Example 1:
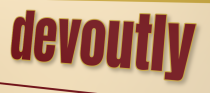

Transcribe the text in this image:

devoutly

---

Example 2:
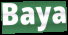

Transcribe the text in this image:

Baya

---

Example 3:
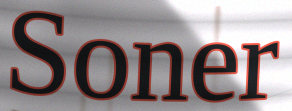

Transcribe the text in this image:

Soner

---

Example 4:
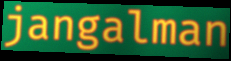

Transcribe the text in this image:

jangalman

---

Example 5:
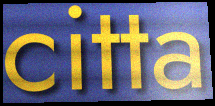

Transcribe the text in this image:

citta